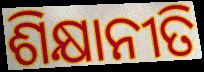
ଶିକ୍ଷାନୀତି